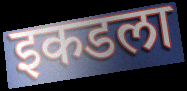
इकडला